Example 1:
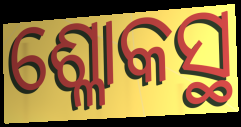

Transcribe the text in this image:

ଶ୍ଳୋକସ୍ଥ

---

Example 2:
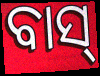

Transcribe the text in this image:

ବାସ୍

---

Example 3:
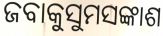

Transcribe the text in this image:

ଜବାକୁସୁମସଙ୍କାଶ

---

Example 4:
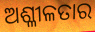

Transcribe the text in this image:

ଅଶ୍ଳୀଳତାର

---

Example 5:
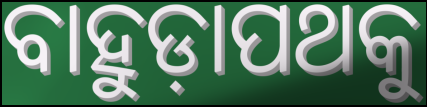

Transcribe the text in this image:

ବାହୁଡ଼ାପଥକୁ